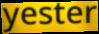
yester